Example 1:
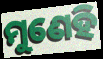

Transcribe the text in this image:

ମୁଣେହି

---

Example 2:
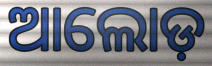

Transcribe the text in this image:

ଆଲୋଡ଼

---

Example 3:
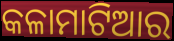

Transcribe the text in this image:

କଳାମାଟିଆର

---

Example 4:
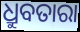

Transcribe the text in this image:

ଧ୍ରୁବତାରା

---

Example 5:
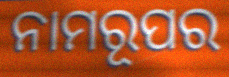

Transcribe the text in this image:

ନାମରୂପର